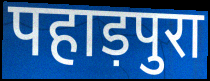
पहाड़पुरा